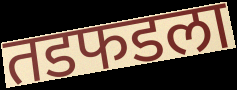
तडफडला